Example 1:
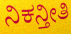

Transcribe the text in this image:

ನಿಕನ್ತೀತಿ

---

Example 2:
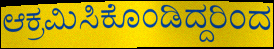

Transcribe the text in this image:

ಆಕ್ರಮಿಸಿಕೊಂಡಿದ್ದರಿಂದ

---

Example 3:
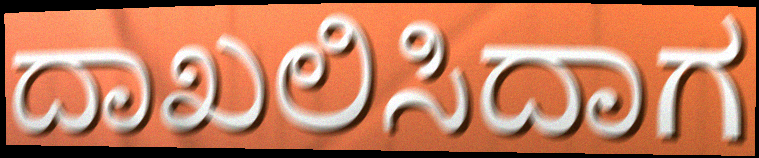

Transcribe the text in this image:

ದಾಖಲಿಸಿದಾಗ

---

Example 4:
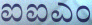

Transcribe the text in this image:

ಐಐಎಂ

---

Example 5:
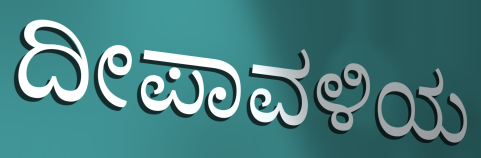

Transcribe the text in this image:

ದೀಪಾವಳಿಯ